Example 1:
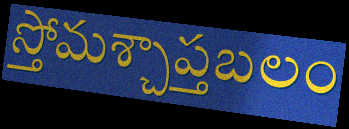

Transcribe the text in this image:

స్తోమశ్చాప్తబలం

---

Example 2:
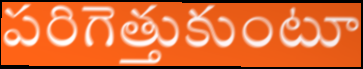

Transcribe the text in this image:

పరిగెత్తుకుంటూ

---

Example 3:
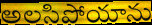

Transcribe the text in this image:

అలసిపోయాను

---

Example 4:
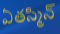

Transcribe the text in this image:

ఏతస్మిన్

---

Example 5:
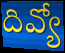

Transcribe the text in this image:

దివ్యో